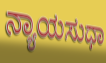
ನ್ಯಾಯಸುಧಾ